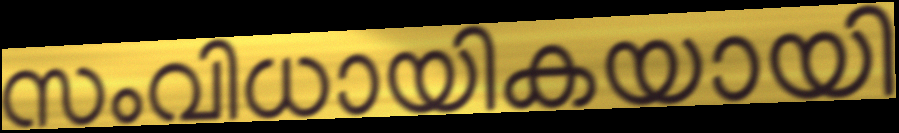
സംവിധായികയായി